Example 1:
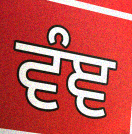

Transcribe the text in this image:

ਵੰਞ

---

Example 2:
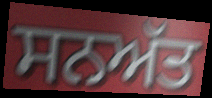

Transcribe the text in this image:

ਸਨਅੱਤ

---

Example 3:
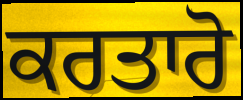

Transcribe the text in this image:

ਕਰਤਾਰੋ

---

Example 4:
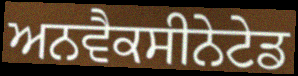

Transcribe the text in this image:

ਅਨਵੈਕਸੀਨੇਟੇਡ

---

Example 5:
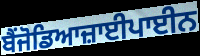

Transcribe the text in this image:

ਬੈਂਜੋਡਿਆਜ਼ਾਈਪਾਈਨ